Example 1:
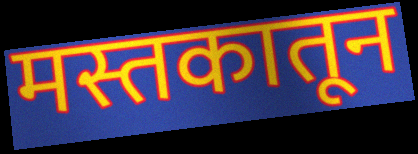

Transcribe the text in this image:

मस्तकातून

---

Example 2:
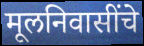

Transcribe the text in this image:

मूलनिवासींचे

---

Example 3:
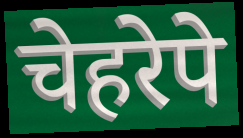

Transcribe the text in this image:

चेहरेपे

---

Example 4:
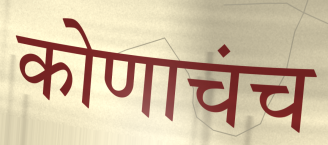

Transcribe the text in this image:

कोणाचंच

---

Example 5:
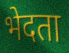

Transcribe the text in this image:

भेदता